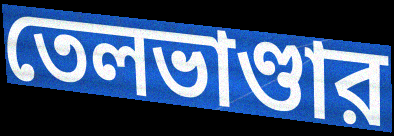
তেলভাণ্ডার